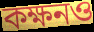
কক্ষনও